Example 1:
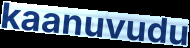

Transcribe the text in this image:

kaanuvudu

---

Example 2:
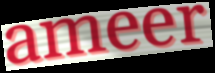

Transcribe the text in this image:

ameer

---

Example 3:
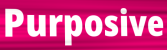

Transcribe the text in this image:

Purposive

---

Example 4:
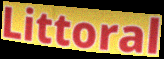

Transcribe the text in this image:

Littoral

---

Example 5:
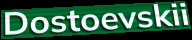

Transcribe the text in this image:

Dostoevskii